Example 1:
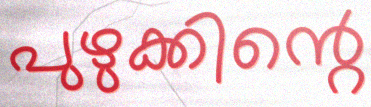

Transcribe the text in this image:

പുഴുക്കിന്റെ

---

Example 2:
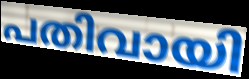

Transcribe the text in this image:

പതിവായി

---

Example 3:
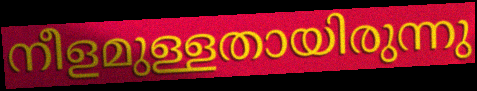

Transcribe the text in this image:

നീളമുള്ളതായിരുന്നു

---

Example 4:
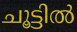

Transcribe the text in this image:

ചൂട്ടിൽ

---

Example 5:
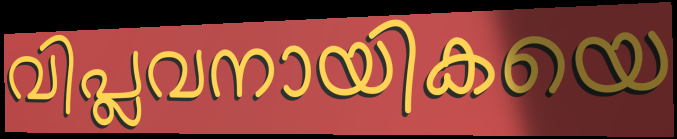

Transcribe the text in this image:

വിപ്ലവനായികയെ